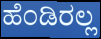
ಹೆಂಡಿರಲ್ಲ